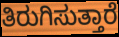
ತಿರುಗಿಸುತ್ತಾರೆ